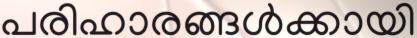
പരിഹാരങ്ങൾക്കായി